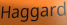
Haggard